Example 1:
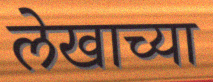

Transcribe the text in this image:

लेखाच्या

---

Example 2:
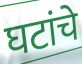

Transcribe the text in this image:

घटांचे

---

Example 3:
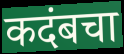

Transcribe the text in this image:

कदंबचा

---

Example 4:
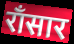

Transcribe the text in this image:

राँसार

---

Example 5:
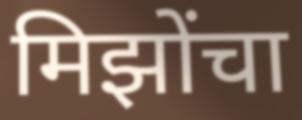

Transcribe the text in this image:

मिझोंचा